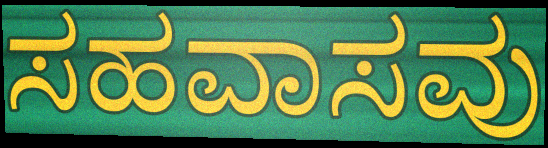
ಸಹವಾಸವು